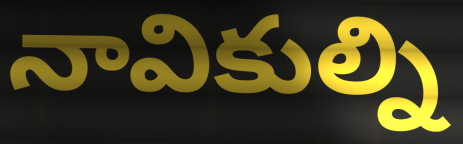
నావికుల్ని